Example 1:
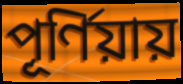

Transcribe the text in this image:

পূর্ণিয়ায়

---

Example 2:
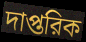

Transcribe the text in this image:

দাপ্তরিক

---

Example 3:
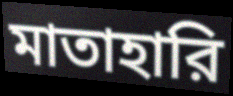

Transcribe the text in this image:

মাতাহারি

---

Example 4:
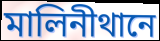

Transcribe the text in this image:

মালিনীথানে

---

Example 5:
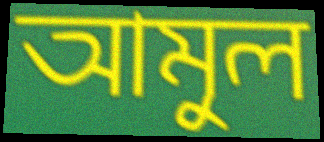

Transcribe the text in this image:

আমুল